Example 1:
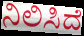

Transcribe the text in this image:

ನಿಲಿಸಿದೆ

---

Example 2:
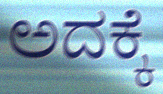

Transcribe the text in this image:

ಅದಕ್ಕೆ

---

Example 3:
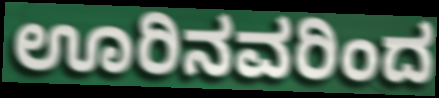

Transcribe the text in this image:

ಊರಿನವರಿಂದ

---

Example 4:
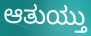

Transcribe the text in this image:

ಆತುಯ್ತು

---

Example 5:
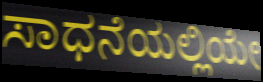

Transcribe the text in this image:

ಸಾಧನೆಯಲ್ಲಿಯೇ